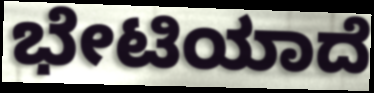
ಭೇಟಿಯಾದೆ